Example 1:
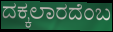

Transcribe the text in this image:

ದಕ್ಕಲಾರದೆಂಬ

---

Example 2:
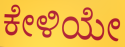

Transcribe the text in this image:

ಕೇಳಿಯೇ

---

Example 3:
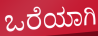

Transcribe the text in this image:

ಒರೆಯಾಗಿ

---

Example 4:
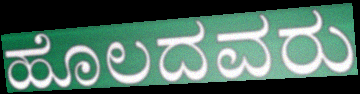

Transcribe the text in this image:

ಹೊಲದವರು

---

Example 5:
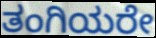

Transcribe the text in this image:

ತಂಗಿಯರೇ